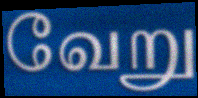
வேறு